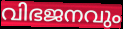
വിഭജനവും